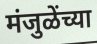
मंजुळेंच्या